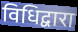
विधिद्वारा